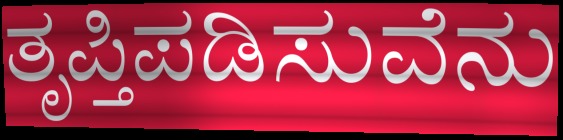
ತೃಪ್ತಿಪಡಿಸುವೆನು